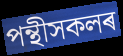
পন্থীসকলৰ